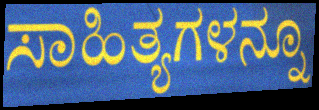
ಸಾಹಿತ್ಯಗಳನ್ನೂ